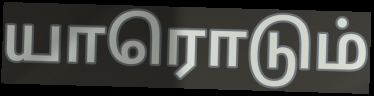
யாரொடும்